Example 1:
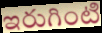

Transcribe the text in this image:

ఇరుగింటి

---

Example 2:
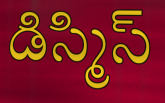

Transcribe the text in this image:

డిస్మిస్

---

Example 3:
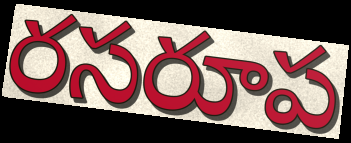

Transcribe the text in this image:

రసరూప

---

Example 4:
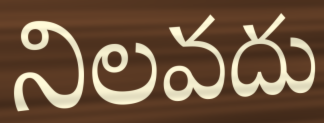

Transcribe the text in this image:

నిలవదు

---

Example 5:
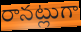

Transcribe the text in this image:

రానట్లుగా